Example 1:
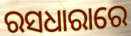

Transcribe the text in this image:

ରସଧାରାରେ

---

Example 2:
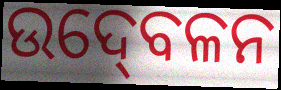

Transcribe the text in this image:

ଉଦ୍‍ବେଳନ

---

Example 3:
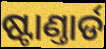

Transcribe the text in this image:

ଷ୍ଟାଣ୍ତାର୍ଡ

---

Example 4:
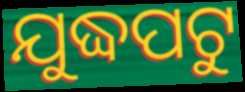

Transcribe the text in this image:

ଯୁଦ୍ଧପଟୁ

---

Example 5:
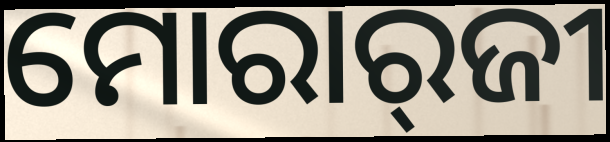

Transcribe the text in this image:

ମୋରାର୍‍ଜୀ